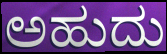
ಅಹುದು